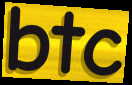
btc